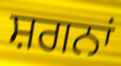
ਸ਼ਗਨਾਂ